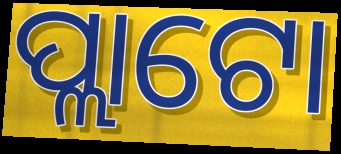
ପ୍ଲାଟୋ